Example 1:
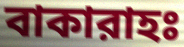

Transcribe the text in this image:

বাকারাহঃ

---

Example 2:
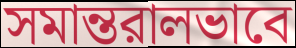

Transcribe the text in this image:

সমান্তরালভাবে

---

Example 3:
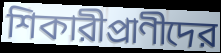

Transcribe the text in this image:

শিকারীপ্রাণীদের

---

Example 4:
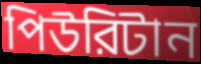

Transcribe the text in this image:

পিউরিটান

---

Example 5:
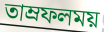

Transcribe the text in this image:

তাম্রফলময়